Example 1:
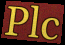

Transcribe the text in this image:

Plc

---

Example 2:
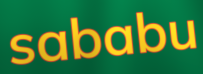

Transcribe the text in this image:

sababu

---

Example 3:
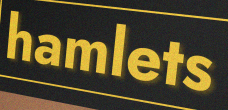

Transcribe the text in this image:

hamlets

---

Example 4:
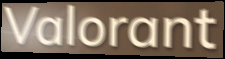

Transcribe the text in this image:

Valorant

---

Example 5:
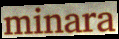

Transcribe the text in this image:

minara